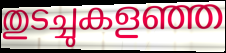
തുടച്ചുകളഞ്ഞ